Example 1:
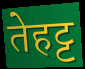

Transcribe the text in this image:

तेहट्ट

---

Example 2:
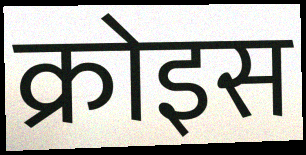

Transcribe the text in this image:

क्रोइस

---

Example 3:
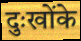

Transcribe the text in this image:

दुःखोंके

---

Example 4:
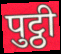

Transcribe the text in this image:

पुट्ठी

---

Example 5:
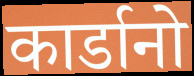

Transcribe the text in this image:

कार्डानो